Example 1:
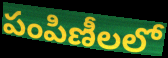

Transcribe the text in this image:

పంపిణీలలో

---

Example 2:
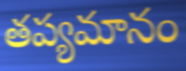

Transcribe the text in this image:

తప్యమానం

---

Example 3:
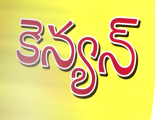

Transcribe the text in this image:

కెన్యన్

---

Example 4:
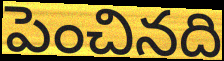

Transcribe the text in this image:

పెంచినది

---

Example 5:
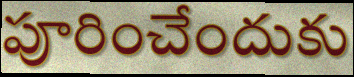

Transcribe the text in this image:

పూరించేందుకు